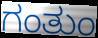
ಗಂತುಂ